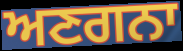
ਅਣਗਨਾ